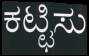
ಕಟ್ಟಿಸು